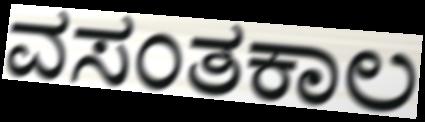
ವಸಂತಕಾಲ